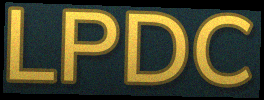
LPDC